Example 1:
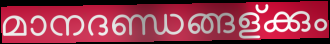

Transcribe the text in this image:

മാനദണ്ഡങ്ങള്ക്കും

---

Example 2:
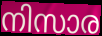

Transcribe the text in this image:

നിസാര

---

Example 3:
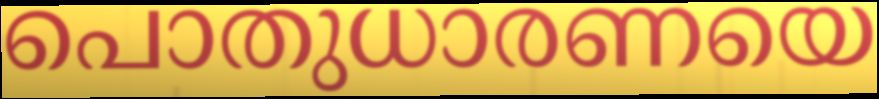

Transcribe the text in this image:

പൊതുധാരണയെ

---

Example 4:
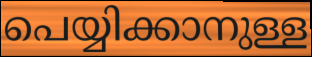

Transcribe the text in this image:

പെയ്യിക്കാനുള്ള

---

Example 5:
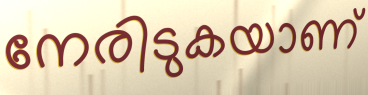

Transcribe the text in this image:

നേരിടുകയാണ്